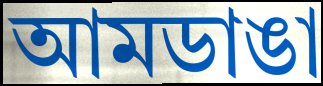
আমডাঙা